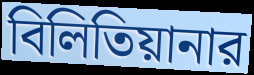
বিলিতিয়ানার